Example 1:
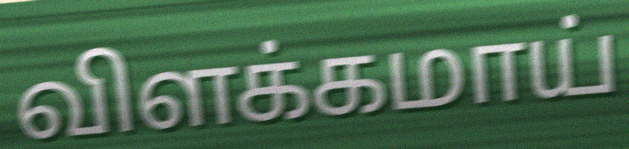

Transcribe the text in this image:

விளக்கமாய்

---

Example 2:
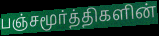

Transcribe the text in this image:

பஞ்சமூர்த்திகளின்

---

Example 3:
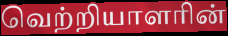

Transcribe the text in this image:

வெற்றியாளரின்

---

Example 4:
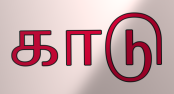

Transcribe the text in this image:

காடு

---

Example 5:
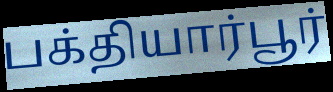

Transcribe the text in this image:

பக்தியார்பூர்